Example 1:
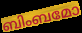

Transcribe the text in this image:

ബിംബമോ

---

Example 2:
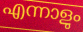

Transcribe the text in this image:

എന്നാളും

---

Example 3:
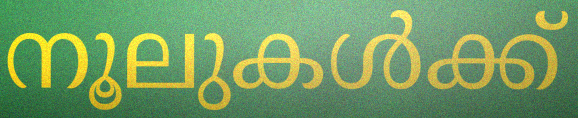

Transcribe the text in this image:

നൂലുകൾക്ക്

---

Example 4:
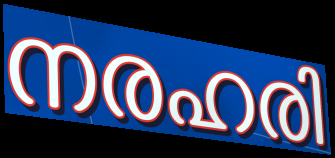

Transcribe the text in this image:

നരഹരി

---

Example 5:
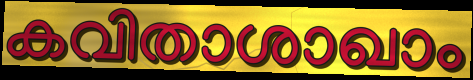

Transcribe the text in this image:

കവിതാശാഖാം